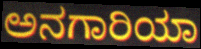
ಅನಗಾರಿಯಾ